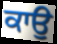
ਕਾਉ